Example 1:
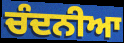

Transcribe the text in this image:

ਚੰਦਨੀਆ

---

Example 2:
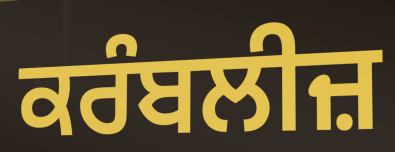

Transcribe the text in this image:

ਕਰੰਬਲੀਜ਼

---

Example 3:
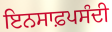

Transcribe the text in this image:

ਇਨਸਾਫ਼ਪਸੰਦੀ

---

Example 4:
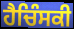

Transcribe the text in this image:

ਹੈਚਿੰਸਕੀ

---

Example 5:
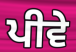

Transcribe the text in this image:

ਪੀਵੇ